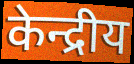
केन्द्रीय